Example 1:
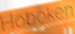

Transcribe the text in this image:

Hoboken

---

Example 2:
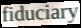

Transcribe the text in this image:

fiduciary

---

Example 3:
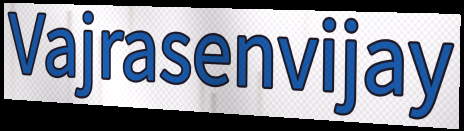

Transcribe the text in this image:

Vajrasenvijay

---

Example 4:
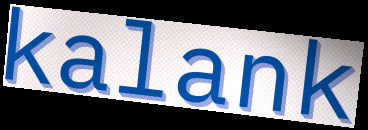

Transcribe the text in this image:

kalank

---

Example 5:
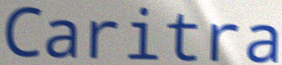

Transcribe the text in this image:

Caritra